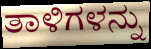
ತಾಳಿಗಳನ್ನು